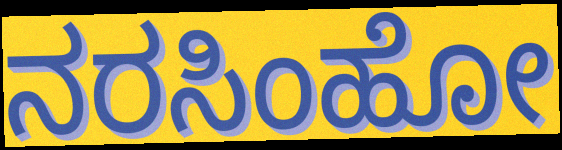
ನರಸಿಂಹೋ